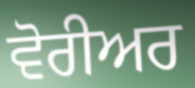
ਵੋਰੀਅਰ